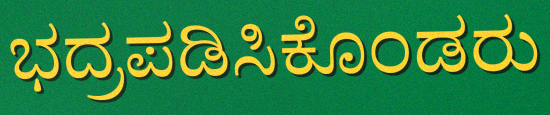
ಭದ್ರಪಡಿಸಿಕೊಂಡರು